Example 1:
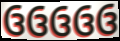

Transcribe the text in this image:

ઉઉઉઉઉ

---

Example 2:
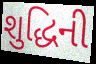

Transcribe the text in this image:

શુદ્ધિની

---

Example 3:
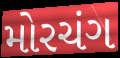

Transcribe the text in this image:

મોરચંગ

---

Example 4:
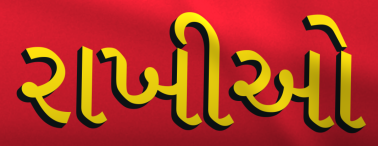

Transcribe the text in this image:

રાખીઓ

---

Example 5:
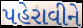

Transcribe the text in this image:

પહેરાવીને